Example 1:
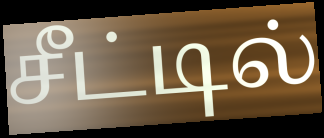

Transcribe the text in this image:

சீட்டில்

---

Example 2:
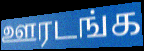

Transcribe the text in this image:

ஊரடங்க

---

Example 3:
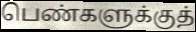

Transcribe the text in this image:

பெண்களுக்குத்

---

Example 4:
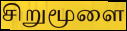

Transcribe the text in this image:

சிறுமூளை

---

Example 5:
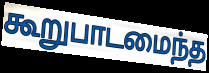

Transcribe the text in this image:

கூறுபாடமைந்த